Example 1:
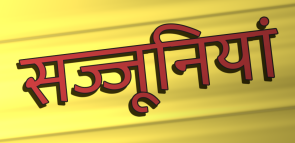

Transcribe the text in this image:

सज्जूनियां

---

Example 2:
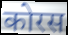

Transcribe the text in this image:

कोरस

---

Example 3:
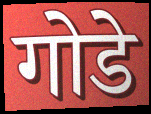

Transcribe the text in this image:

गोडे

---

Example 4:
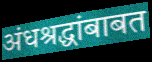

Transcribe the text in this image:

अंधश्रद्धांबाबत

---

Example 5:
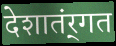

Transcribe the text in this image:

देशातंर्गत